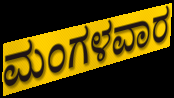
ಮಂಗಳವಾರ